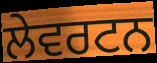
ਲੇਵਰਟਨ